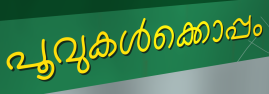
പൂവുകൾക്കൊപ്പം